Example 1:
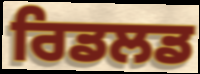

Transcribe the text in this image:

ਰਿਡਲਡ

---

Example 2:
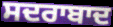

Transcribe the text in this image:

ਸਦਰਾਬਾਦ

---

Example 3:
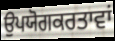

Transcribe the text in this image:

ਉਪਯੋਗਕਰਤਾਵਾਂ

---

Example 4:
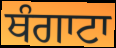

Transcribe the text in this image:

ਥੰਗਾਟਾ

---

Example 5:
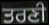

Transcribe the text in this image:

ਤਰਣੀ